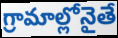
గ్రామాల్లోనైతే